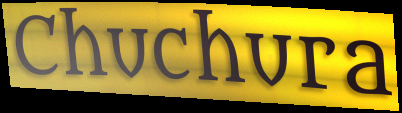
Chuchura